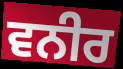
ਵਨੀਰ